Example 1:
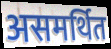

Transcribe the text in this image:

असमर्थित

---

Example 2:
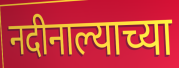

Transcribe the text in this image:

नदीनाल्याच्या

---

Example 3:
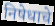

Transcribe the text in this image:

निषेधाचे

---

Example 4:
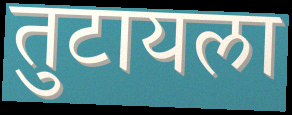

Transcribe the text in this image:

तुटायला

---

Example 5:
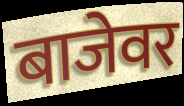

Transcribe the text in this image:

बाजेवर